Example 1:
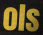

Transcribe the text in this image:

ols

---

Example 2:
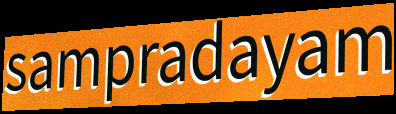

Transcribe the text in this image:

sampradayam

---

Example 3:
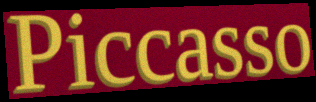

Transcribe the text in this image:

Piccasso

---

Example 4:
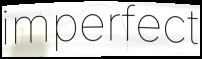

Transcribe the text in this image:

imperfect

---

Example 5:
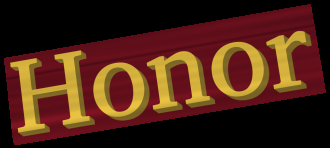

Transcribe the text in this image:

Honor